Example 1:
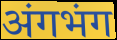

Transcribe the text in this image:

अंगभंग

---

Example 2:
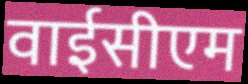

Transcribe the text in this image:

वाईसीएम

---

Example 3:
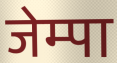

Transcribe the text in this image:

जेम्पा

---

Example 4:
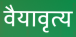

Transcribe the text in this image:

वैयावृत्य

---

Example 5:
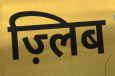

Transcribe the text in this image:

ज़्लिब